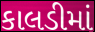
કાલડીમાં